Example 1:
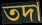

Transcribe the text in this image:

তদা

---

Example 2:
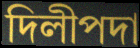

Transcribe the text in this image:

দিলীপদা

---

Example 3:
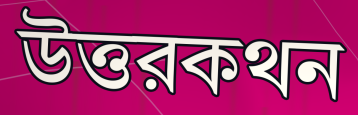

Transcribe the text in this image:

উত্তরকথন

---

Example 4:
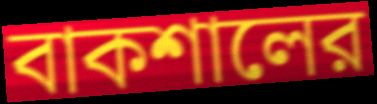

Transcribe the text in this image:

বাকশালের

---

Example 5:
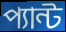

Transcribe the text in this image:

প্যান্ট